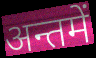
अन्तमें